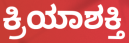
ಕ್ರಿಯಾಶಕ್ತಿ